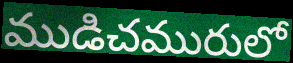
ముడిచమురులో